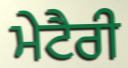
ਮੇਟੈਰੀ